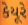
કેયૂરે